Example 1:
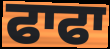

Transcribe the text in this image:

ਫਾਫਾ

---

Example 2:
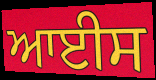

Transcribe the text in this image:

ਆਈਸ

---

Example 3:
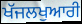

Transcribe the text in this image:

ਖੱਜਲਖੁਆਰੀ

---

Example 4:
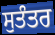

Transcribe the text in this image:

ਸੁਤੰਤਰ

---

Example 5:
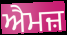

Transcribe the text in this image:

ਐਮਜ਼